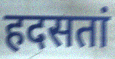
हदसतां